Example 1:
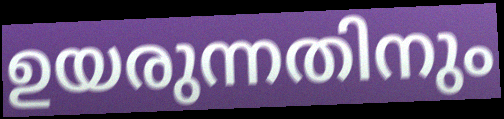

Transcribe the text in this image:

ഉയരുന്നതിനും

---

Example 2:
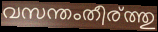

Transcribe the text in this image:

വസന്തംതീര്ത്തു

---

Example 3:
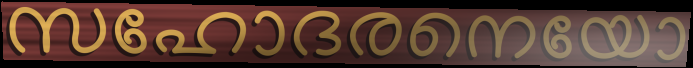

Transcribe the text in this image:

സഹോദരനെയോ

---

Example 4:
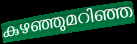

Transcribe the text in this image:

കുഴഞ്ഞുമറിഞ്ഞ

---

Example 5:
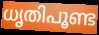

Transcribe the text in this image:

ധൃതിപൂണ്ട